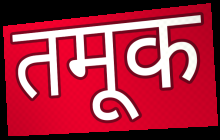
तमूक